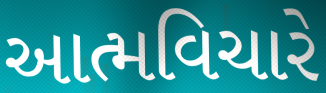
આત્મવિચારે